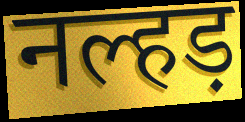
नल्हड़